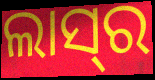
ଲାସ୍‌ର